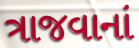
ત્રાજવાનાં